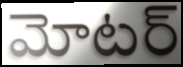
మోటర్